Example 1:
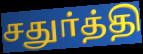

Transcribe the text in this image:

சதுர்த்தி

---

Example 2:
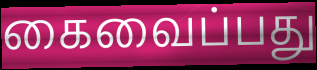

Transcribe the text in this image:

கைவைப்பது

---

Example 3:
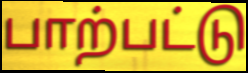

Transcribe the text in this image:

பாற்பட்டு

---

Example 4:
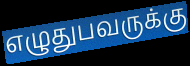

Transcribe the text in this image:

எழுதுபவருக்கு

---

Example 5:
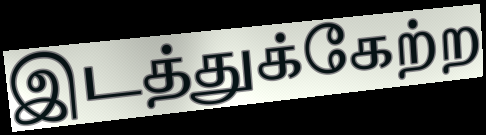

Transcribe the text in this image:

இடத்துக்கேற்ற